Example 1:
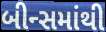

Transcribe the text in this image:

બીન્સમાંથી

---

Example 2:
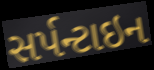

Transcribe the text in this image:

સર્પન્ટાઇન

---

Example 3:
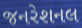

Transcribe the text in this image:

જનરેશનલ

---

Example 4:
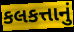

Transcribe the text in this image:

કલકત્તાનું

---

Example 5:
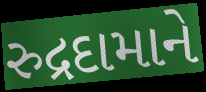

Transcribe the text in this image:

રુદ્રદામાને